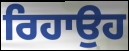
ਰਿਹਾਉਹ